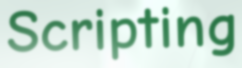
Scripting